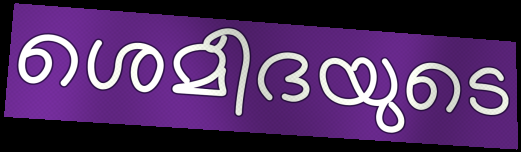
ശെമീദയുടെ